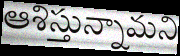
ఆశిస్తున్నామని